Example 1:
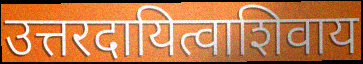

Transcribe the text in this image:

उत्तरदायित्वाशिवाय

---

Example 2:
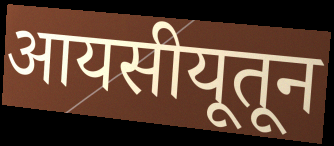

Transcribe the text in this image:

आयसीयूतून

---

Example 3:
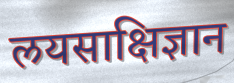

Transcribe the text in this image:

लयसाक्षिज्ञान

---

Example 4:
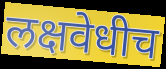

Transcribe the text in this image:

लक्षवेधीच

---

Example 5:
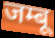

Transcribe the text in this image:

जम्बू